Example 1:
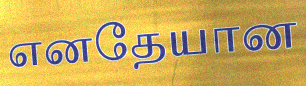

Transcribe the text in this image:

எனதேயான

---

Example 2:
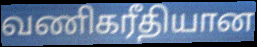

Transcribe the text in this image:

வணிகரீதியான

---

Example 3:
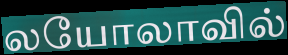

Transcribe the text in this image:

லயோலாவில்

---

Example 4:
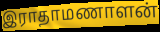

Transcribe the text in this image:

இராதாமணாளன்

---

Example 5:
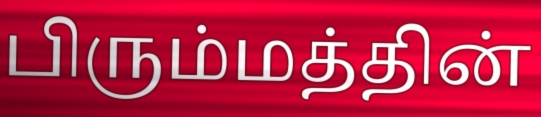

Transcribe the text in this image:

பிரும்மத்தின்